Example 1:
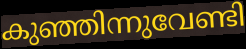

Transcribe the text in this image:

കുഞ്ഞിന്നുവേണ്ടി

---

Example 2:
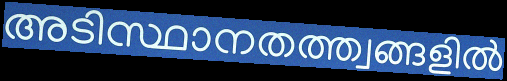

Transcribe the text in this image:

അടിസ്ഥാനതത്ത്വങ്ങളിൽ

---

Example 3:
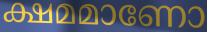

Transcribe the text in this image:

ക്ഷമമാണോ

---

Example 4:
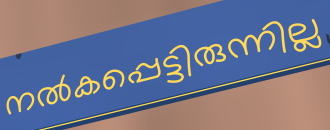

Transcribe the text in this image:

നൽകപ്പെട്ടിരുന്നില്ല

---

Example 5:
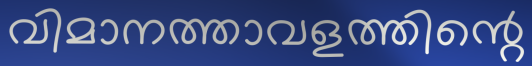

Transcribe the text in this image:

വിമാനത്താവളത്തിന്റെ